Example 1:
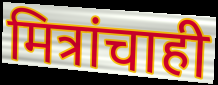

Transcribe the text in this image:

मित्रांचाही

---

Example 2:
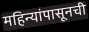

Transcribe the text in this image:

महिन्यांपासूनची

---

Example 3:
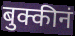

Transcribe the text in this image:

बुक्कीनं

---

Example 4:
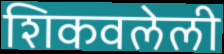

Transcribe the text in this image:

शिकवलेली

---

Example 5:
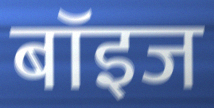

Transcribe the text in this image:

बॉइज